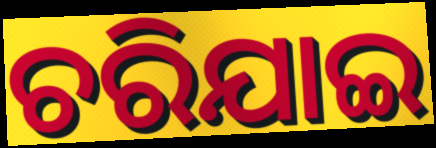
ଚରିଯାଇ